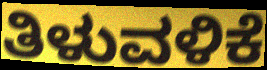
ತಿಳುವಳಿಕೆ